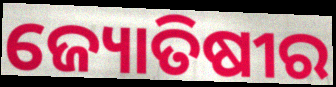
ଜ୍ୟୋତିଷୀର